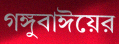
গঙ্গুবাঈয়ের